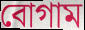
বোগাম